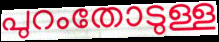
പുറംതോടുള്ള